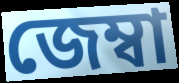
জেম্বা